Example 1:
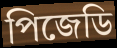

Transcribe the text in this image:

পিজেডি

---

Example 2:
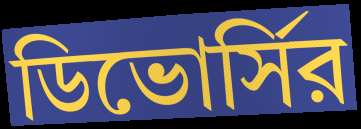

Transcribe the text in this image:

ডিভোর্সির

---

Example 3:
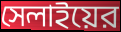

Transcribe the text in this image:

সেলাইয়ের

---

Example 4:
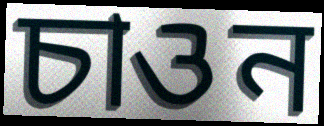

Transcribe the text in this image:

চাওন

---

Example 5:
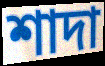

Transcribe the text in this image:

শাদা